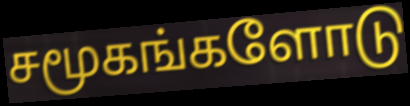
சமூகங்களோடு